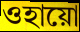
ওহায়ো